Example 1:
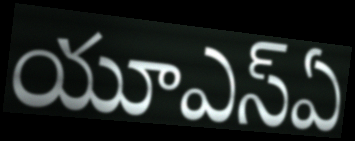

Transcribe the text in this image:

యూఎస్ఏ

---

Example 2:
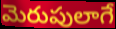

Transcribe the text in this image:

మెరుపులాగే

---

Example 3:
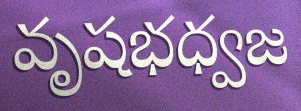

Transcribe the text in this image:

వృషభధ్వజ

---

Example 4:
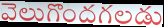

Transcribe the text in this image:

వెలుగొందగలడు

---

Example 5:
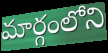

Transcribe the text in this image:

మార్గంలోని